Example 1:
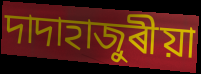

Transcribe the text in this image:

দাদাহাজুৰীয়া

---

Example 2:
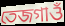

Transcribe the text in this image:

তেজগাওঁ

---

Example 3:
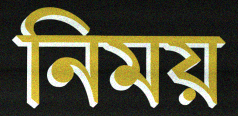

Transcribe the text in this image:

নিময়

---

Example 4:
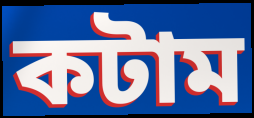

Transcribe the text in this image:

কটাম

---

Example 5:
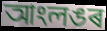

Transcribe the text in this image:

আংলঙৰ